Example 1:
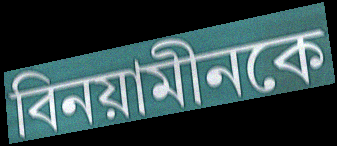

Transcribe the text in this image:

বিনয়ামীনকে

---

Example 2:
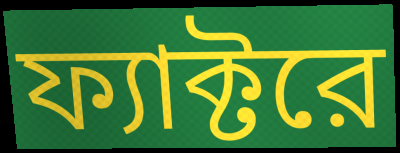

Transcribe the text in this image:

ফ্যাক্টরে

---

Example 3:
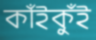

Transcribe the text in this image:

কাঁইকুঁই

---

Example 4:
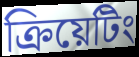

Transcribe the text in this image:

ক্রিয়েটিং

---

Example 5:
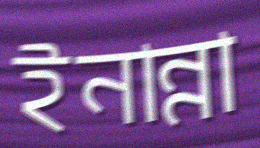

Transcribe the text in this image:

ইনান্না